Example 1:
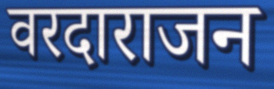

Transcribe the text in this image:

वरदाराजन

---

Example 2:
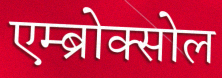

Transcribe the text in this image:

एम्ब्रोक्सोल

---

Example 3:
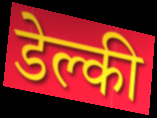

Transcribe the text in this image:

डेल्की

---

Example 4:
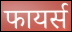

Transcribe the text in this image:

फायर्स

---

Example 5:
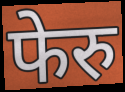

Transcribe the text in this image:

फेरु